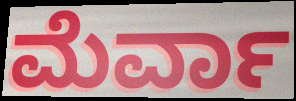
ಮೆರ್ವಾ